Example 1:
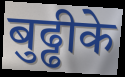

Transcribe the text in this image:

बुढ्ढीके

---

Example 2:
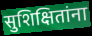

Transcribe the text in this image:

सुशिक्षितांना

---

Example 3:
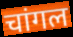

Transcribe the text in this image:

चांगल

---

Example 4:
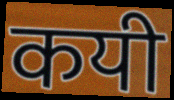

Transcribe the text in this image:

कयी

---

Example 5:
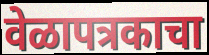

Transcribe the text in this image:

वेळापत्रकाचा